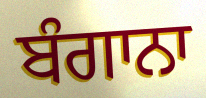
ਬੰਗਾਨਾ